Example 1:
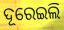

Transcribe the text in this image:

ଦୂରେଇଲି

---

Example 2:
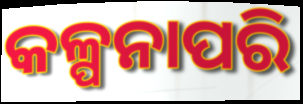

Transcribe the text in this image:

କଳ୍ପନାପରି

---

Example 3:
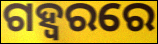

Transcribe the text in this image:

ଗହ୍ୱରରେ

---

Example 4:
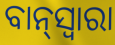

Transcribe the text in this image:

ବାନ୍‌ସ୍ୱାରା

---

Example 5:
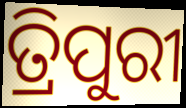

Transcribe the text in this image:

ତ୍ରିପୁରୀ